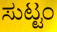
ಸುಟ್ಟಂ